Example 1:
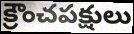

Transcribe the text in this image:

క్రౌంచపక్షులు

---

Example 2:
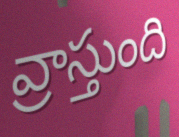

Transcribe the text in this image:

వ్రాస్తుంది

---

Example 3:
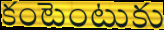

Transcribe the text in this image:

కంటెంటుకు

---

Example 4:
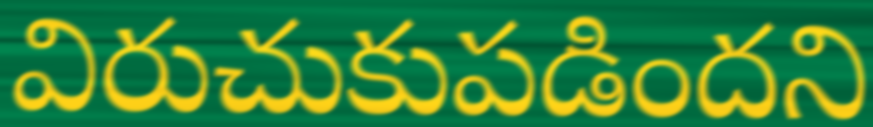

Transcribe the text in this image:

విరుచుకుపడిందని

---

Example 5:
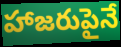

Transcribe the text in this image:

హాజరుపైనే